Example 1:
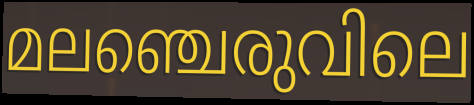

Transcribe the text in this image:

മലഞ്ചെരുവിലെ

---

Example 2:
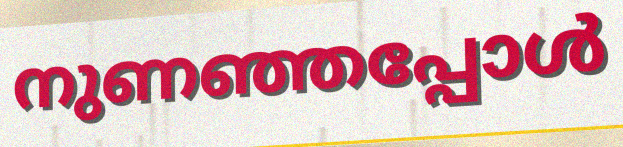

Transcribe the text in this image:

നുണഞ്ഞപ്പോൾ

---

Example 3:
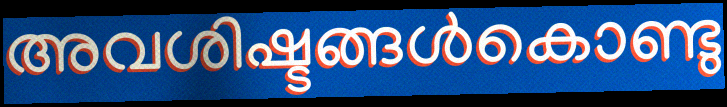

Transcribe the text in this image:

അവശിഷ്ടങ്ങൾകൊണ്ടു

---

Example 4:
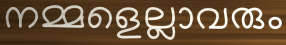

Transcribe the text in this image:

നമ്മളെല്ലാവരും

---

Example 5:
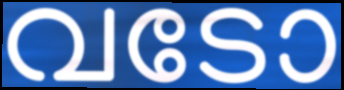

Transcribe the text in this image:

വടോ